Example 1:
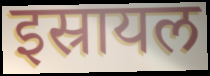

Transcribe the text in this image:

इस्रायल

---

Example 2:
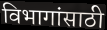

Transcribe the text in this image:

विभागांसाठी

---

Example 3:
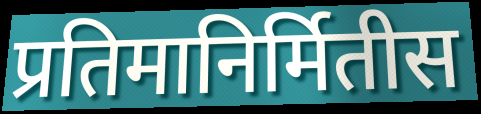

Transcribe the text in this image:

प्रतिमानिर्मितीस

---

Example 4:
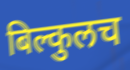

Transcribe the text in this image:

बिल्कुलच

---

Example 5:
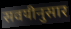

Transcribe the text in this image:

सवयीनुसार